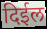
दिईल